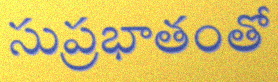
సుప్రభాతంతో